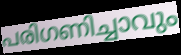
പരിഗണിച്ചാവും